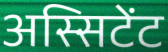
अस्सिटेंट